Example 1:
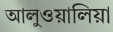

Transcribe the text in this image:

আলুওয়ালিয়া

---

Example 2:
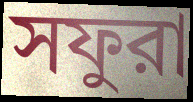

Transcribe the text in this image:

সফুরা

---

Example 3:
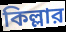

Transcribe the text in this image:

কিল্লার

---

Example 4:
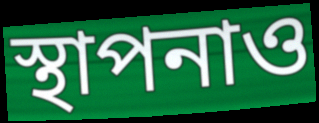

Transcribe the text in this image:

স্থাপনাও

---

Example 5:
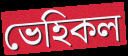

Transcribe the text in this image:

ভেহিকল